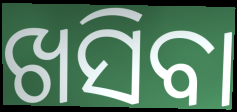
ଖସିବା